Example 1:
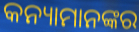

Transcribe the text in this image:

କନ୍ୟାମାନଙ୍କର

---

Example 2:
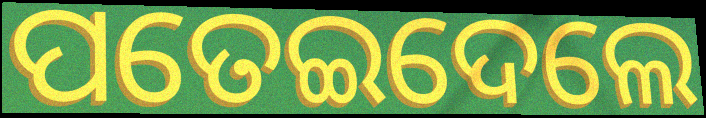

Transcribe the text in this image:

ପତେଇଦେଲେ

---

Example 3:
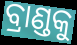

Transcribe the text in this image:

ବ୍ରାଣ୍ଡକୁ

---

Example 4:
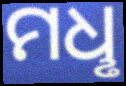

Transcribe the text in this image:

ମଧୢ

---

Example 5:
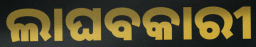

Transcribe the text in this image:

ଲାଘବକାରୀ